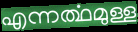
എന്നൎത്ഥമുള്ള